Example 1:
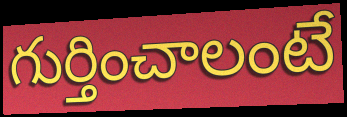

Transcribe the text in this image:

గుర్తించాలంటే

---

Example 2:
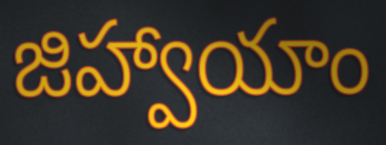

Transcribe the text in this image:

జిహ్వాయాం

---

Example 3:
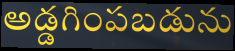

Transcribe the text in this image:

అడ్డగింపబడును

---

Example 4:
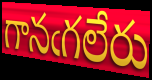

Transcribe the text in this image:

గానఁగలేరు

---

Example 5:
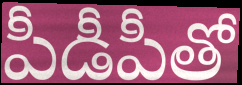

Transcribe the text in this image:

పీడీపీతో